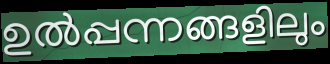
ഉൽപ്പന്നങ്ങളിലും